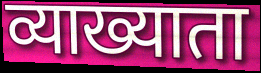
व्‍याख्‍याता